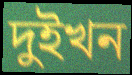
দুইখন